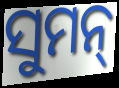
ସୁମନ୍